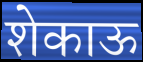
शेकाऊ